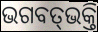
ଭଗବତ୍‌ଭକ୍ତି